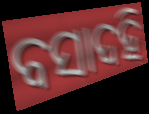
ବସାଦହି